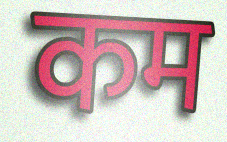
कम